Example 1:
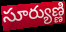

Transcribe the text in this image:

సూర్యుణ్ణి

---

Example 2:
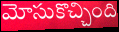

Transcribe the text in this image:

మోసుకొచ్చింది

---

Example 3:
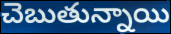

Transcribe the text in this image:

చెబుతున్నాయి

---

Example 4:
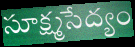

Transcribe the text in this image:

సూక్ష్మసేద్యం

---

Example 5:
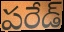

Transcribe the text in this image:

పరేడ్